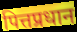
पित्तप्रधान